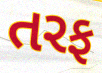
તરફ